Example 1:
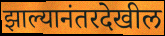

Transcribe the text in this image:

झाल्यानंतरदेखील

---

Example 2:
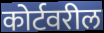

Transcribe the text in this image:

कोर्टवरील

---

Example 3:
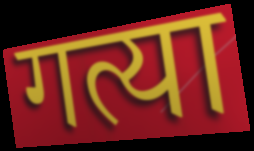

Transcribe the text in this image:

गत्या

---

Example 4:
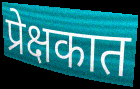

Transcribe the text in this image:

प्रेक्षकात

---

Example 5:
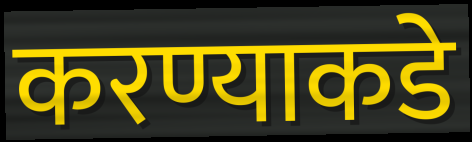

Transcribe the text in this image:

करण्याकडे